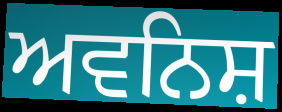
ਅਵਨਿਸ਼